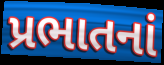
પ્રભાતનાં